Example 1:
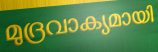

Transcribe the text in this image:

മുദ്രവാക്യമായി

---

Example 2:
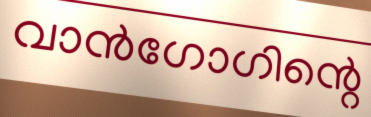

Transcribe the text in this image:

വാൻഗോഗിന്റെ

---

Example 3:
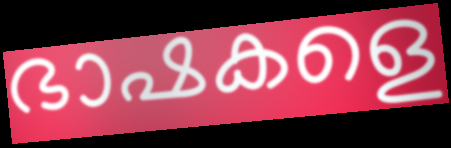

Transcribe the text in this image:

ഭാഷകളെ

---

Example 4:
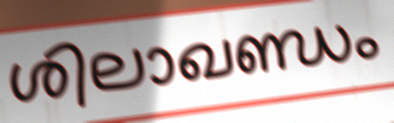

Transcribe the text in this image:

ശിലാഖണ്ഡം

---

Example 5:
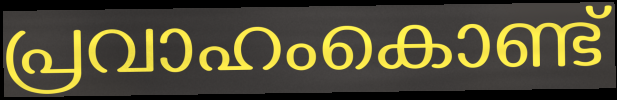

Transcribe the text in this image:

പ്രവാഹംകൊണ്ട്